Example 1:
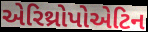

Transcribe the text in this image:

એરિથ્રોપોએટિન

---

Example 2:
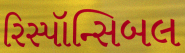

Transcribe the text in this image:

રિસ્પૉન્સિબલ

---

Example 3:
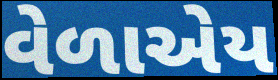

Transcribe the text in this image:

વેળાએય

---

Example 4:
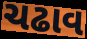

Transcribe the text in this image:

ચઢાવ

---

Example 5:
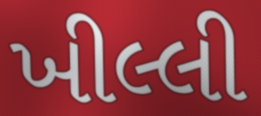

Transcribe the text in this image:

ખીલ્લી